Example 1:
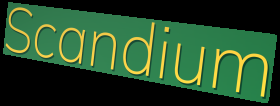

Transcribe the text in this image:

Scandium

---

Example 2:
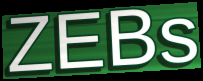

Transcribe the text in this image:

ZEBs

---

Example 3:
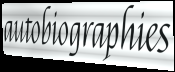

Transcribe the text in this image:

autobiographies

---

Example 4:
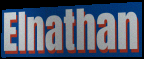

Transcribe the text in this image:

Elnathan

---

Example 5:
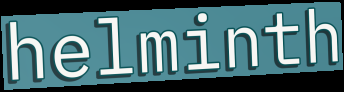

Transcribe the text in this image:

helminth